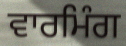
ਵਾਰਮਿੰਗ